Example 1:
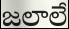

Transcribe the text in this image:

జలాలే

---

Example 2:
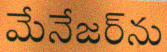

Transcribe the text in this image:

మేనేజర్‌ను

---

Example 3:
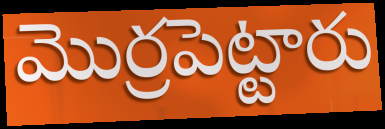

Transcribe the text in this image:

మొర్రపెట్టారు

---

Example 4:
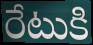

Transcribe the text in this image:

రేటుకి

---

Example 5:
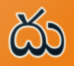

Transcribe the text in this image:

దు